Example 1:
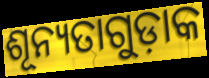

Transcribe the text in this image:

ଶୂନ୍ୟତାଗୁଡ଼ାକ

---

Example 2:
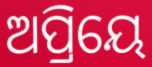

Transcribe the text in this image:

ଅପ୍ରିୟେ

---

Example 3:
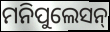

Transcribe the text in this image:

ମନିପୁଲେସନ୍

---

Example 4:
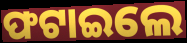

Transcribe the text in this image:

ଫଟାଇଲେ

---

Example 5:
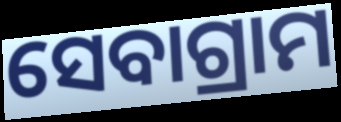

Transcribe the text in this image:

ସେବାଗ୍ରାମ